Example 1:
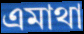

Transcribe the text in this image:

এমাথা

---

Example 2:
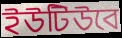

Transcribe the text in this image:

ইউটিউবে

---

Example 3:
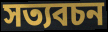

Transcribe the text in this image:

সত্যবচন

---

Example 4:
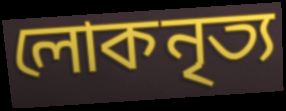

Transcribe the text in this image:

লোকনৃত্য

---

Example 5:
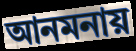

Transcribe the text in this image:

আনমনায়